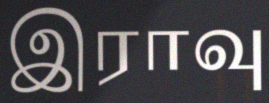
இராவு